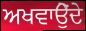
ਅਖਵਾਉੇਂਦੇ